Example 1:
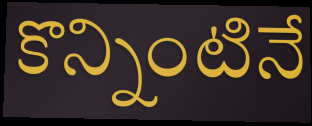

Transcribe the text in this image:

కొన్నింటినే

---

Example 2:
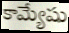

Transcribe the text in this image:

కామ్యేషు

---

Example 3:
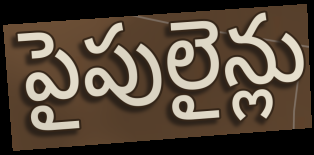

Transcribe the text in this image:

పైపులైన్లు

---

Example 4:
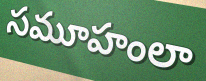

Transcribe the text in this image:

సమూహంలా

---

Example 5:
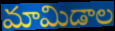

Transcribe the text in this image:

మామిడాల